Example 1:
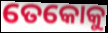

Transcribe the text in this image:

ତେକୋକୁ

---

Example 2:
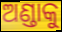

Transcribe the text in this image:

ଅଣ୍ଡାକୁ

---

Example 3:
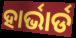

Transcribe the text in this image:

ହାର୍ଭାର୍ଡ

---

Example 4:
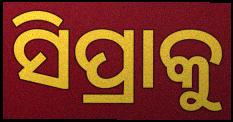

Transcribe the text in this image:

ସିପ୍ରାକୁ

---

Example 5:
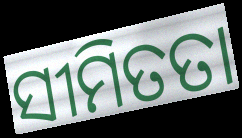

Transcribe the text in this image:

ସୀମିତତା